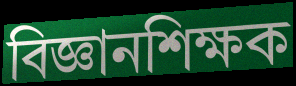
বিজ্ঞানশিক্ষক